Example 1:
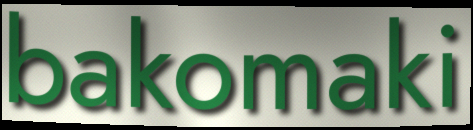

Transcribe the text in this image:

bakomaki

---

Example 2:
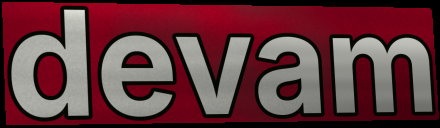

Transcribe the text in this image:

devam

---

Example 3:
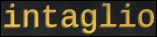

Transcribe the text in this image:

intaglio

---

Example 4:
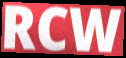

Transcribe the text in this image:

RCW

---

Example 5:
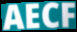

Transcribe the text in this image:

AECF